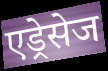
एड्रेसेज